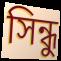
সিন্ধু